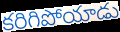
కరిగిపోయాడు